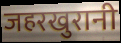
जहरखुरानी